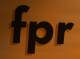
fpr